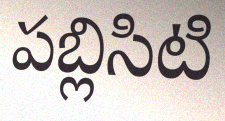
పబ్లిసిటి